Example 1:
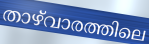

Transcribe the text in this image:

താഴ്‌വാരത്തിലെ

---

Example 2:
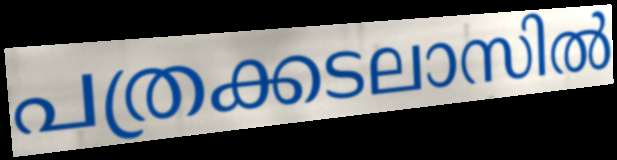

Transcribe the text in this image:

പത്രക്കടലാസിൽ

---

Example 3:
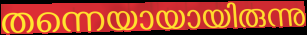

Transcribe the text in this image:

തന്നെയായായിരുന്നു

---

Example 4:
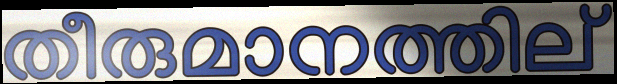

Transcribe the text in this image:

തീരുമാനത്തില്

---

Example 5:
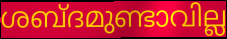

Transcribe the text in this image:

ശബ്ദമുണ്ടാവില്ല